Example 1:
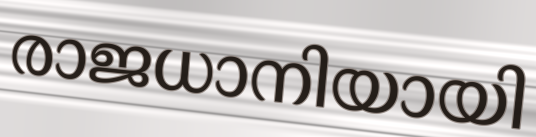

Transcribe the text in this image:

രാജധാനിയായി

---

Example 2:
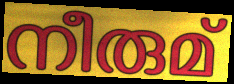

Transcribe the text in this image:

നീരുമ്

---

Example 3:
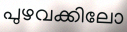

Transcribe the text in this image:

പുഴവക്കിലോ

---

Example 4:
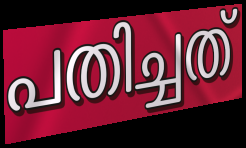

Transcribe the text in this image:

പതിച്ചത്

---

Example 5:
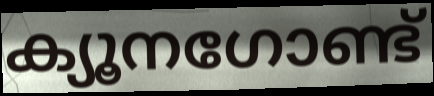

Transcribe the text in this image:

ക്യൂനഗോണ്ട്